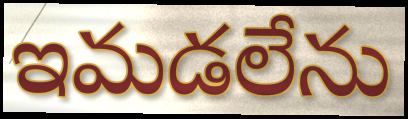
ఇమడలేను